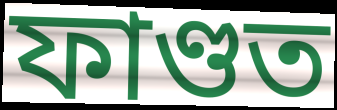
ফাণ্ডত